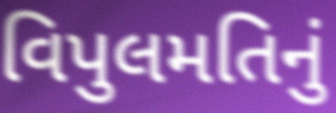
વિપુલમતિનું